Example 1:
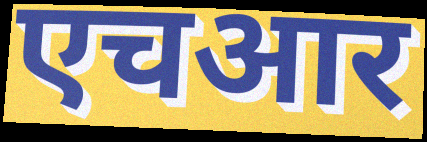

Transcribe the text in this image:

एचआर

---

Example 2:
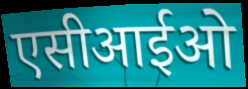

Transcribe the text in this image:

एसीआईओ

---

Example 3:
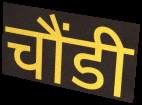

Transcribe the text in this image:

चौंडी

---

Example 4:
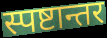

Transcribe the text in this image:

स्पष्टान्तर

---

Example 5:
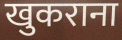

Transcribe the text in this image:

खुकराना